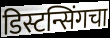
डिस्टन्सिंगचा